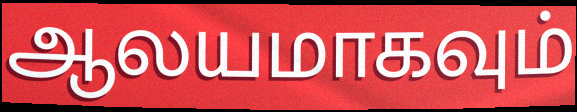
ஆலயமாகவும்